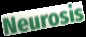
Neurosis